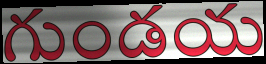
గుండయ